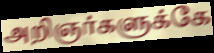
அறிஞர்களுக்கே